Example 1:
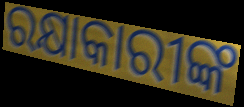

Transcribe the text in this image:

ରକ୍ଷାକାରୀଙ୍କ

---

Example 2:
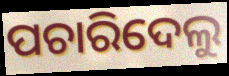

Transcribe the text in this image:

ପଚାରିଦେଲୁ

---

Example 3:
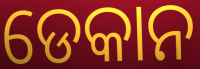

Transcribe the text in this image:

ଡେକାନ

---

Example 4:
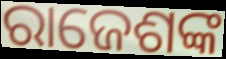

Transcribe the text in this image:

ରାଜେଶଙ୍କ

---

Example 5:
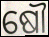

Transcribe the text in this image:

ଷୌ